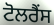
ਟੋਲਰੈਂਸ